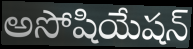
అసోషియేషన్